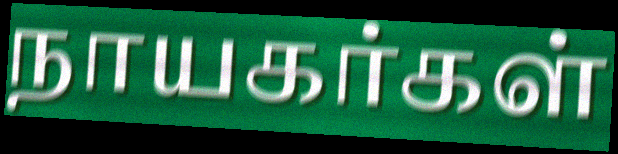
நாயகர்கள்